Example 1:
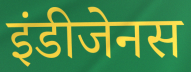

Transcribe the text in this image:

इंडीजेनस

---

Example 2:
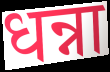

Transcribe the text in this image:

धन्ना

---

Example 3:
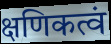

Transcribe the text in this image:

क्षणिकत्वं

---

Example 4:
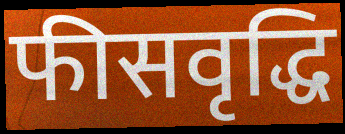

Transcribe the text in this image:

फीसवृद्धि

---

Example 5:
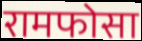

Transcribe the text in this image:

रामफोसा